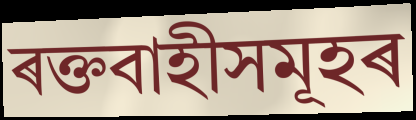
ৰক্তবাহীসমূহৰ